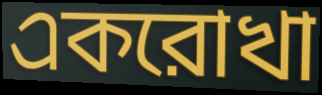
একরোখা